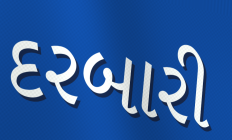
દરબારી